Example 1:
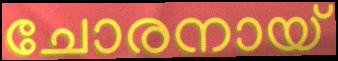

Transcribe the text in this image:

ചോരനായ്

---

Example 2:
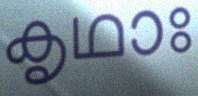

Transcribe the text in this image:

കൃഥാഃ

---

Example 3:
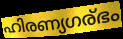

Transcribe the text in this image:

ഹിരണ്യഗര്ഭം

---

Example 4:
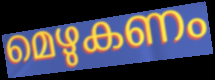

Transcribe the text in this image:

മെഴുകണം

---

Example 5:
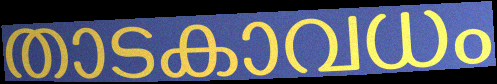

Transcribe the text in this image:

താടകാവധം